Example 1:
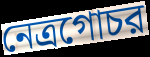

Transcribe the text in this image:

নেত্রগোচর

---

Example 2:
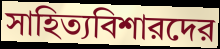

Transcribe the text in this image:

সাহিত্যবিশারদের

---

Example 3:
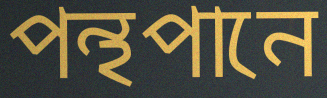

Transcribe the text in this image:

পন্থপানে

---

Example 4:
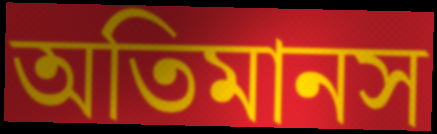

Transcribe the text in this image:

অতিমানস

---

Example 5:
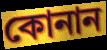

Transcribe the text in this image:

কোনান